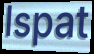
Ispat